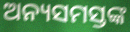
ଅନ୍ୟସମସ୍ତଙ୍କ